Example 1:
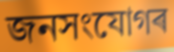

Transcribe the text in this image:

জনসংযোগৰ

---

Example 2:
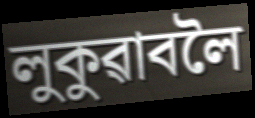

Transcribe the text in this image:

লুকুৱাবলৈ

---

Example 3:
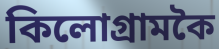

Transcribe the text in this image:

কিলোগ্ৰামকৈ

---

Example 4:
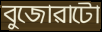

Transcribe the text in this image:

বুজোৱাটো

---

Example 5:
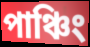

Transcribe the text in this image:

পাঞ্চিং